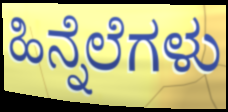
ಹಿನ್ನೆಲೆಗಳು